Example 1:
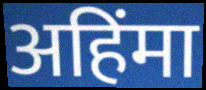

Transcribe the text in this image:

अहिंमा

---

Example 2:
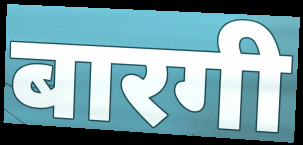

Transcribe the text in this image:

बारगी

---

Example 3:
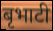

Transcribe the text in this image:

बृभाटी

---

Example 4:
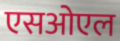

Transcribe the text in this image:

एसओएल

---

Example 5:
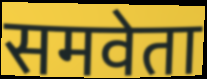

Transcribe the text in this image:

समवेता